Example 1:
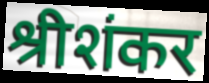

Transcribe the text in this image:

श्रीशंकर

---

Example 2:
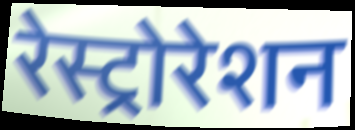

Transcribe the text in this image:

रेस्ट्रोरेशन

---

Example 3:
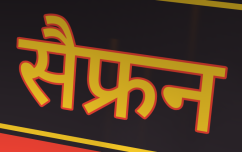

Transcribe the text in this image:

सैफ्रन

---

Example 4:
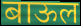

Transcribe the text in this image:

बाऊल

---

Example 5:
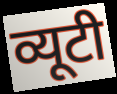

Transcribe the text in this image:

व्यूटी